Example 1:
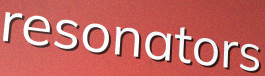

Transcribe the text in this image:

resonators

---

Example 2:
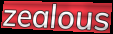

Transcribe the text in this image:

zealous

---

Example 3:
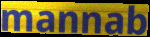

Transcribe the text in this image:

mannab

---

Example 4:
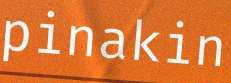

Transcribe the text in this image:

pinakin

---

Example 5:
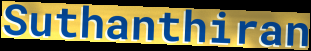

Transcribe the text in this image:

Suthanthiran